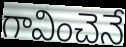
గావించెనే